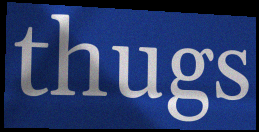
thugs